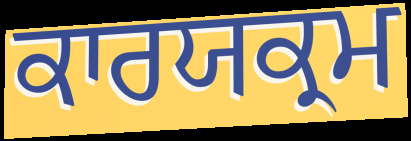
ਕਾਰਯਕ੍ਰਮ